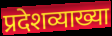
प्रदेशव्याख्या